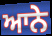
ਆਨੇ